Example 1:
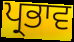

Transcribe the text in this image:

ਪ੍ਰਭਾਵ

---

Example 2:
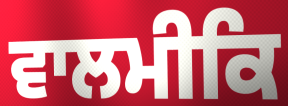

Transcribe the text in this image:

ਵਾਲਮੀਕਿ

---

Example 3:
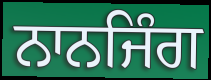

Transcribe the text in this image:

ਨਾਨਜਿੰਗ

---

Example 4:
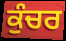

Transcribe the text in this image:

ਕੁੰਚਰ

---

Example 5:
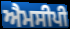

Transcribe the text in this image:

ਐਮਸੀਪੀ